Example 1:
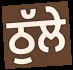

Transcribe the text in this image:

ਠੁੱਲੇ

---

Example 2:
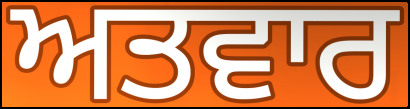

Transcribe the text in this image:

ਅਤਵਾਰ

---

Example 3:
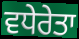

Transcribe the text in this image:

ਵਧੇਰੇਤਾ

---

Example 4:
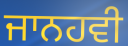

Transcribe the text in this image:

ਜਾਨਹਵੀ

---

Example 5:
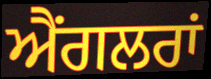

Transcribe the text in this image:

ਐਂਗਲਰਾਂ